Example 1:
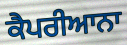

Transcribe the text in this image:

ਕੈਪਰੀਆਨਾ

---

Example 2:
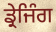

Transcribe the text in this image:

ਡ੍ਰੇਜਿੰਗ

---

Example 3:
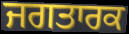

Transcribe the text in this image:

ਜਗਤਾਰਕ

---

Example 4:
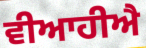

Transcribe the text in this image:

ਵੀਆਹੀਐ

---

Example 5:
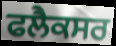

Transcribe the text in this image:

ਫਲੈਕਸਰ